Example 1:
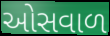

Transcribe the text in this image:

ઓસવાળ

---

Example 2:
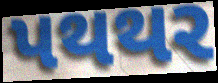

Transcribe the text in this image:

પથથર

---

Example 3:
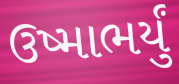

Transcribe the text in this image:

ઉષ્માભર્યું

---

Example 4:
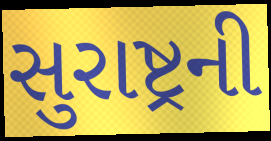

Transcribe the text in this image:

સુરાષ્ટ્રની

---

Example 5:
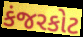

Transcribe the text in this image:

કંજરકોટ